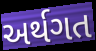
અર્થગત